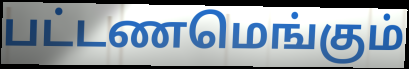
பட்டணமெங்கும்